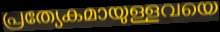
പ്രത്യേകമായുള്ളവയെ